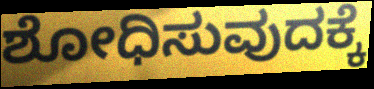
ಶೋಧಿಸುವುದಕ್ಕೆ